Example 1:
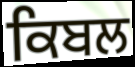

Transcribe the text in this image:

ਕਿਬਲ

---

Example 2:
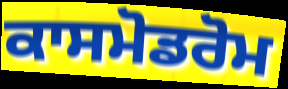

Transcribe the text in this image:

ਕਾਸਮੋਡਰੋਮ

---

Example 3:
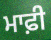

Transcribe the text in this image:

ਮਾਫ਼ੀ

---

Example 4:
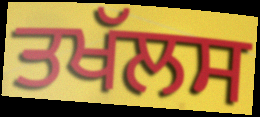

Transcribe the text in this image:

ਤਖੱਲਸ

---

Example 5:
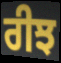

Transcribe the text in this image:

ਰੀਝ